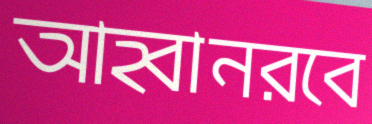
আহ্বানরবে